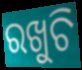
ରଖୁଚି